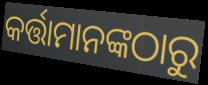
କର୍ତ୍ତାମାନଙ୍କଠାରୁ